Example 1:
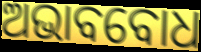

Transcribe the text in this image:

ଅଭାବବୋଧ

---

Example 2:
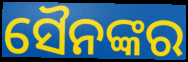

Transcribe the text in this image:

ସୈନଙ୍କର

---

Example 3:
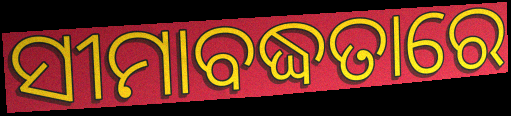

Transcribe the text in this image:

ସୀମାବଦ୍ଧତାରେ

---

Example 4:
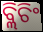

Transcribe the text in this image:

ବ୍ଲିଚିଂ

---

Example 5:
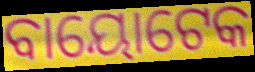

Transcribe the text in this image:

ବାୟୋଟେକ